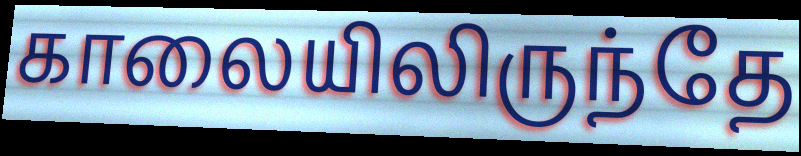
காலையிலிருந்தே